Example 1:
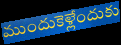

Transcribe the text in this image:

ముందుకెళ్లేందుకు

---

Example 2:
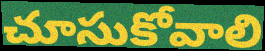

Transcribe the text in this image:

చూసుకోవాలి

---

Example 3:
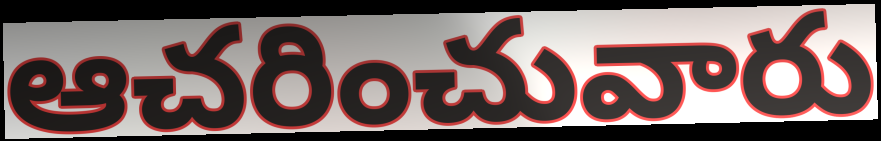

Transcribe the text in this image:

ఆచరించువారు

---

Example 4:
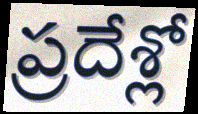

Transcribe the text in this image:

ప్రదేశ్లో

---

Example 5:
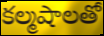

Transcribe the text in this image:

కల్మషాలతో